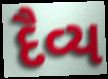
દૈવ્ય